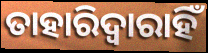
ତାହାରିଦ୍ୱାରାହିଁ